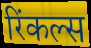
रिंकल्स